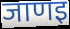
जाणइ